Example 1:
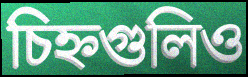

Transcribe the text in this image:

চিহ্নগুলিও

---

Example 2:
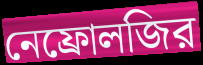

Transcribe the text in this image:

নেফ্রোলজির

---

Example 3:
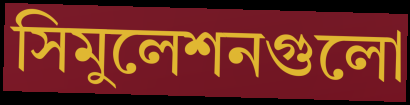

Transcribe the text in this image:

সিমুলেশনগুলো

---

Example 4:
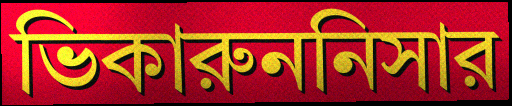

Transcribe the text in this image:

ভিকারুননিসার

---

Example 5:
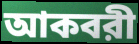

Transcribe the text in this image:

আকবরী